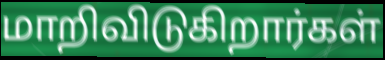
மாறிவிடுகிறார்கள்